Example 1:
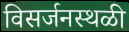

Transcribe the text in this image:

विसर्जनस्थळी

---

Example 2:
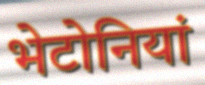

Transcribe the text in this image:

भेटोनियां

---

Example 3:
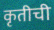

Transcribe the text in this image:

कृतीची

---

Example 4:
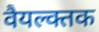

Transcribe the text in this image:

वैयल्क्तक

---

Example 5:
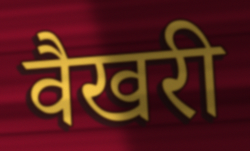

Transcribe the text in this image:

वैखरी